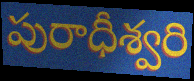
పురాధీశ్వరి